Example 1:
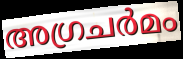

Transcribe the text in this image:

അഗ്രചർമം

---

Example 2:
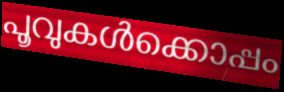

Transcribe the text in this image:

പൂവുകൾക്കൊപ്പം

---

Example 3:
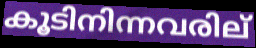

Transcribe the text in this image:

കൂടിനിന്നവരില്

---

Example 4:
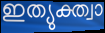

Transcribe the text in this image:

ഇത്യുക്ത്വാ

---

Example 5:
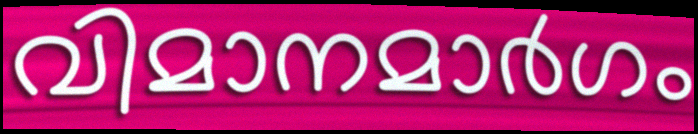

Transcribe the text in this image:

വിമാനമാർഗം